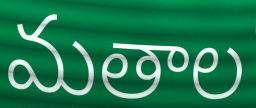
మతాల